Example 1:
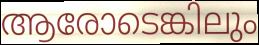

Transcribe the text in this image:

ആരോടെങ്കിലും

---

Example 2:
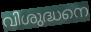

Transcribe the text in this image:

വിശുദ്ധനെ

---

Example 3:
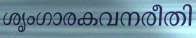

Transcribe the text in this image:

ശൃംഗാരകവനരീതി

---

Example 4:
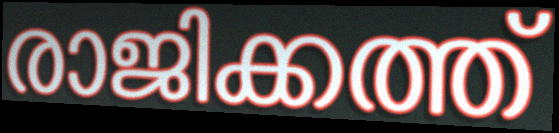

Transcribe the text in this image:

രാജിക്കത്ത്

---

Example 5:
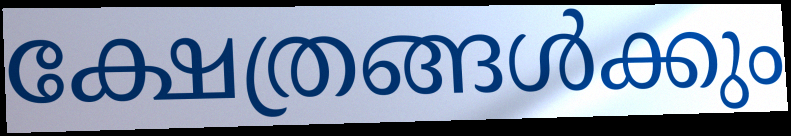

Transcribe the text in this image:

ക്ഷേത്രങ്ങൾക്കും